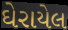
ઘેરાયેલ